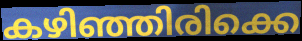
കഴിഞ്ഞിരിക്കെ